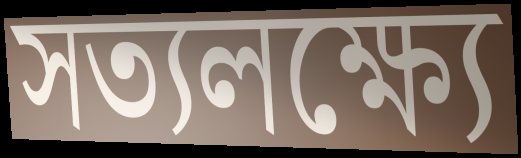
সত্যলক্ষ্যে